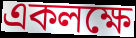
একলক্ষে